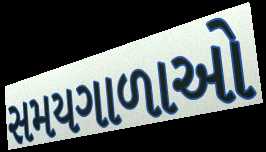
સમયગાળાઓ